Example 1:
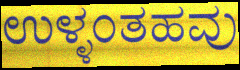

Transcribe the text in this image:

ಉಳ್ಳಂತಹವು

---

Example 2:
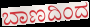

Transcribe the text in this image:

ಬಾಣದಿಂದ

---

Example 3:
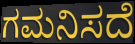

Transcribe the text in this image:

ಗಮನಿಸದೆ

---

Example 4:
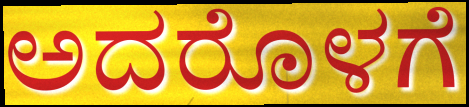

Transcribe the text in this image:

ಅದರೊಳಗೆ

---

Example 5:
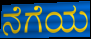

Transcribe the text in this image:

ನೆಗೆಯ